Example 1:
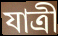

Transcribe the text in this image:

যাত্ৰী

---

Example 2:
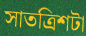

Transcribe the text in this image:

সাতত্ৰিশটা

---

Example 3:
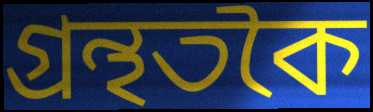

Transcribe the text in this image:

গ্ৰন্থতকৈ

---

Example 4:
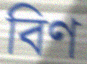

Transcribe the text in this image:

বিণ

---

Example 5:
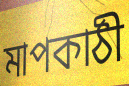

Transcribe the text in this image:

মাপকাঠী